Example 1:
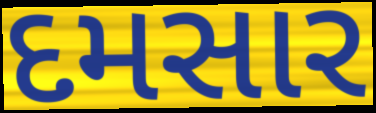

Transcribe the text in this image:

દમસાર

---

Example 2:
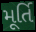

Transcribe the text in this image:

મૂર્તિ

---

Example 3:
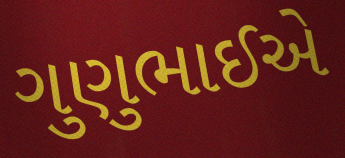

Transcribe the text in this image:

ગુણુભાઈએ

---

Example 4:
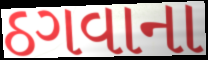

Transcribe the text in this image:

ઠગવાના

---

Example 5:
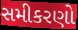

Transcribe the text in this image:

સમીકરણો